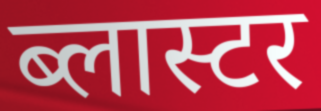
ब्लास्टर